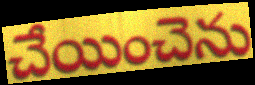
చేయించెను